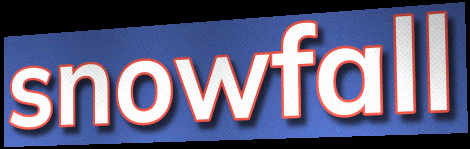
snowfall